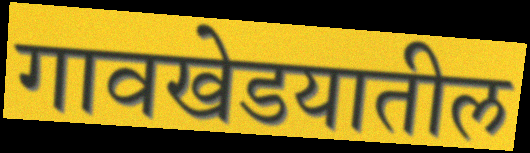
गावखेडयातील